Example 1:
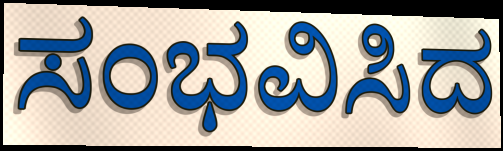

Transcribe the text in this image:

ಸಂಭವಿಸಿದ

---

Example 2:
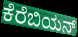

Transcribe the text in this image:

ಕೆರೆಬಿಯನ್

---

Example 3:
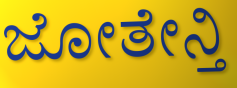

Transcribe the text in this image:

ಜೋತೇನ್ತಿ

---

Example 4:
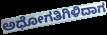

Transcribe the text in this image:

ಅಧೋಗತಿಗಿಳಿದಾಗ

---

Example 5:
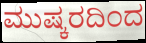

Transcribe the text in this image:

ಮುಷ್ಕರದಿಂದ